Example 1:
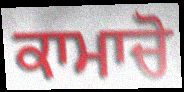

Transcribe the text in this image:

ਕਾਮਾਚੋ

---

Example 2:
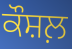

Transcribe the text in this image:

ਕੌਸ਼ਲ਼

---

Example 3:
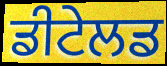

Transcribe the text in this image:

ਡੀਟੇਲਡ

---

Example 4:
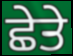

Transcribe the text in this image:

ਛੇਤੇ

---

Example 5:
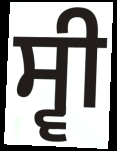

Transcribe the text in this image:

ਸ੍ਵੀ